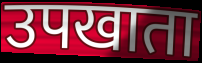
उपखाता